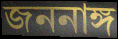
জননাঙ্গ